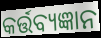
କର୍ତ୍ତବ୍ୟଜ୍ଞାନ